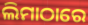
ଲିମାଠାରେ